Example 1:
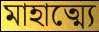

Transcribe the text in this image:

মাহাত্ম্যে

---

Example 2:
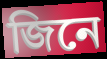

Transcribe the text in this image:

জিনে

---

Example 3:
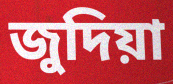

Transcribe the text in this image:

জুদিয়া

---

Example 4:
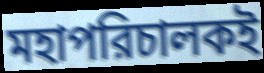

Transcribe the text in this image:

মহাপরিচালকই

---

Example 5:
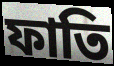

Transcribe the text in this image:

ফাতি